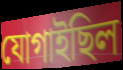
যোগাইছিল